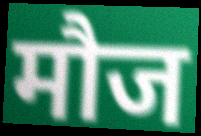
मौज